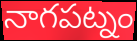
నాగపట్నం